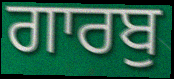
ਗਾਰਬੁ